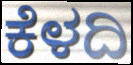
ಕೆಳದಿ